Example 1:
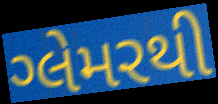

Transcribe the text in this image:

ગ્લેમરથી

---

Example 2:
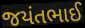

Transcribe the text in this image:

જયંતભાઈ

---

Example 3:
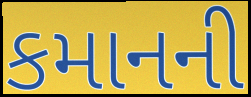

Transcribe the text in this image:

કમાનની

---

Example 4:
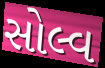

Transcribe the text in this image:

સોલ્વ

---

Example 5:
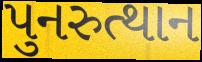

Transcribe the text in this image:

પુનરુત્થાન